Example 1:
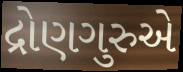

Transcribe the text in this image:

દ્રોણગુરુએ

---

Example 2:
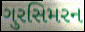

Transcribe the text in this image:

ગુરસિમરન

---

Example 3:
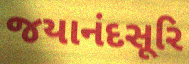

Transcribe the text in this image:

જયાનંદસૂરિ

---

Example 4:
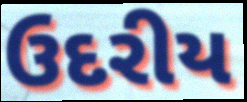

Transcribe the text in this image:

ઉદરીય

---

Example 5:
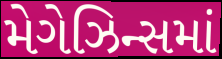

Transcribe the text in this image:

મેગેઝિન્સમાં